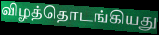
விழத்தொடங்கியது